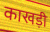
काखड़ी